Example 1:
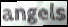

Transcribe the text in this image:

angels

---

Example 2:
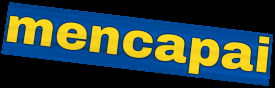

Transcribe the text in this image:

mencapai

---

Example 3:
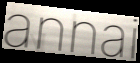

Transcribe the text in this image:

annai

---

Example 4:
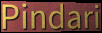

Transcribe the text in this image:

Pindari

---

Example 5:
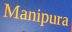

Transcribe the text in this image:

Manipura